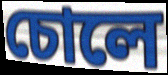
চোলে